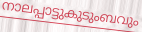
നാലപ്പാട്ടുകുടുംബവും